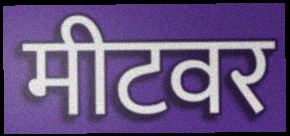
मीटवर